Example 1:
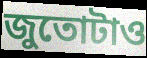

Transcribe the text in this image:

জুতোটাও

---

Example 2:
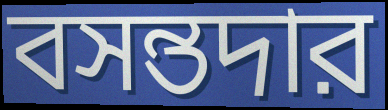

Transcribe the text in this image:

বসন্তদার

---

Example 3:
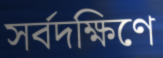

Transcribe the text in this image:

সর্বদক্ষিণে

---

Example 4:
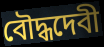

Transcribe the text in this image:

বৌদ্ধদেবী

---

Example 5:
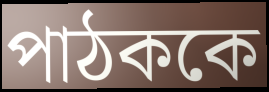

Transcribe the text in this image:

পাঠককে